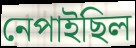
নেপাইছিল